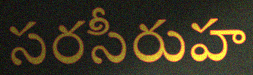
సరసీరుహ